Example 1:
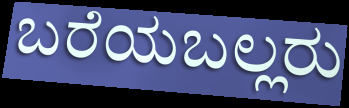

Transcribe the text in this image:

ಬರೆಯಬಲ್ಲರು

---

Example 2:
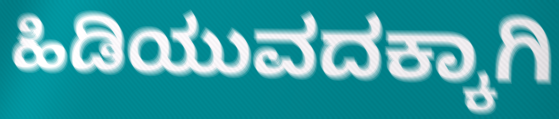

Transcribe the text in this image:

ಹಿಡಿಯುವದಕ್ಕಾಗಿ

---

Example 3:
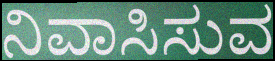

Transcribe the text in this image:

ನಿವಾಸಿಸುವ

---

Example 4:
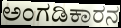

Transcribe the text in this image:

ಅಂಗಡಿಕಾರನ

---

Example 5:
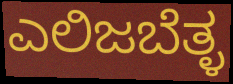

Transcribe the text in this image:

ಎಲಿಜಬೆತ್ಳ